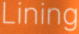
Lining